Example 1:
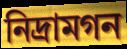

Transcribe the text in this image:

নিদ্রামগন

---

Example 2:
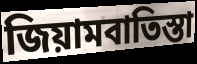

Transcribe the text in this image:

জিয়ামবাতিস্তা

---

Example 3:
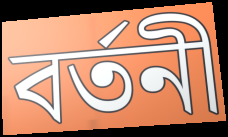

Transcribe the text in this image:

বর্তনী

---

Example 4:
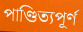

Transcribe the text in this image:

পাণ্ডিত্যপূর্ণ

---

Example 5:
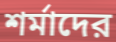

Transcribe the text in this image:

শর্মাদের